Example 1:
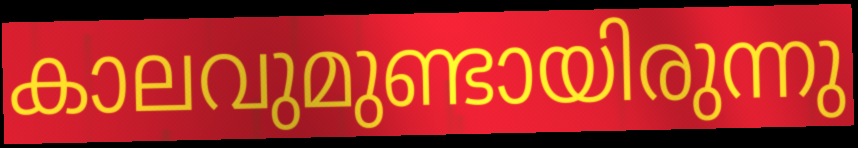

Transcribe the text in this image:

കാലവുമുണ്ടായിരുന്നു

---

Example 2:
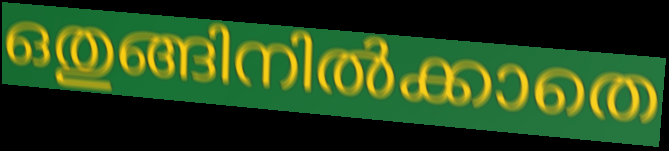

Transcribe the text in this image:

ഒതുങ്ങിനിൽക്കാതെ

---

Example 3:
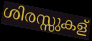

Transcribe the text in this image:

ശിരസ്സുകള്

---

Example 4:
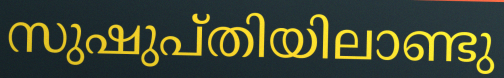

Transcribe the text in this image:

സുഷുപ്തിയിലാണ്ടു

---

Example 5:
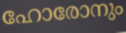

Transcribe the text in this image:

ഹോരോനും